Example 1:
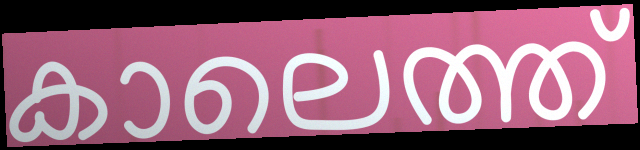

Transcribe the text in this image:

കാലെത്ത്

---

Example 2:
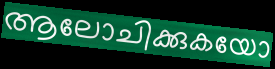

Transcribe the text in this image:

ആലോചിക്കുകയോ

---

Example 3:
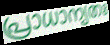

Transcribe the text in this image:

പ്രാധാന്യതഃ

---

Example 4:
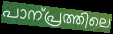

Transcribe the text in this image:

പാന്പ്രത്തിലെ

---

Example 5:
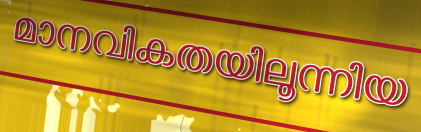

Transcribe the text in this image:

മാനവികതയിലൂന്നിയ